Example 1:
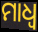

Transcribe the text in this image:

ମାଧ୍ଵ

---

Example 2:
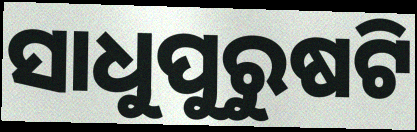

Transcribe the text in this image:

ସାଧୁପୁରୁଷଟି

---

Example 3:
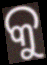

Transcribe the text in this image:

କୁ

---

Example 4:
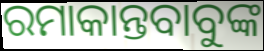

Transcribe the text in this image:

ରମାକାନ୍ତବାବୁଙ୍କ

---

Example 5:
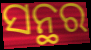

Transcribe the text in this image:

ସନ୍ଥର